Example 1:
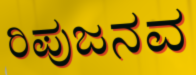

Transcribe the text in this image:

ರಿಪುಜನವ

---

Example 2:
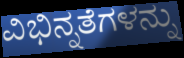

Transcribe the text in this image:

ವಿಭಿನ್ನತೆಗಳನ್ನು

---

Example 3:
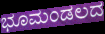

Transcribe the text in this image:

ಭೂಮಂಡಲದ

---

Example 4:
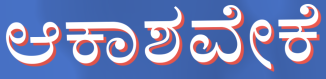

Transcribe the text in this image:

ಆಕಾಶವೇಕೆ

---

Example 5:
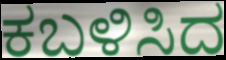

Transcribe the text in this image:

ಕಬಳಿಸಿದ